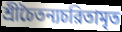
শ্রীচৈতন্যচরিতামৃত